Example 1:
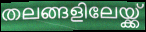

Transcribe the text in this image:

തലങ്ങളിലേയ്ക്ക്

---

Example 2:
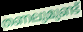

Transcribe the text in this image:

തണലുമുണ്ട്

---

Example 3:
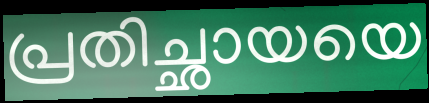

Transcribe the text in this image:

പ്രതിച്ഛായയെ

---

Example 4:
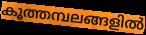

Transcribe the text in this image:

കൂത്തമ്പലങ്ങളിൽ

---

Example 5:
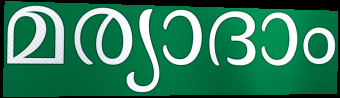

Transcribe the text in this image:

മര്യാദാം